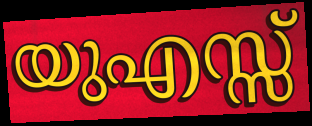
യുഎസ്സ്